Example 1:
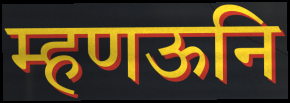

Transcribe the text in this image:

म्हणऊनि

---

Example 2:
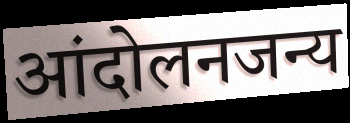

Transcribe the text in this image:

आंदोलनजन्य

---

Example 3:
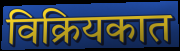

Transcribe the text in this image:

विक्रियकात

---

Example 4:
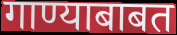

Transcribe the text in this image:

गाण्याबाबत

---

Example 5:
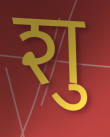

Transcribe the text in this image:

शु